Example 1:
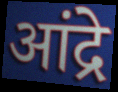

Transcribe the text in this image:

आंद्रे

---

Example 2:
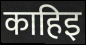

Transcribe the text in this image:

काहिइ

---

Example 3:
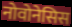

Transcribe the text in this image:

नोवोनेसिस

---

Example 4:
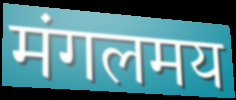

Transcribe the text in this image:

मंगलमय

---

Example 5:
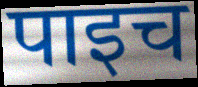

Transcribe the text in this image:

पाइच